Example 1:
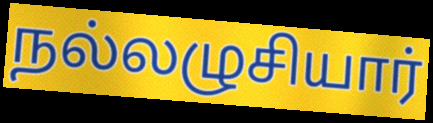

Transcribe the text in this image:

நல்லழுசியார்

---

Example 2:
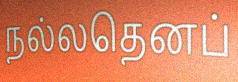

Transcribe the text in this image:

நல்லதெனப்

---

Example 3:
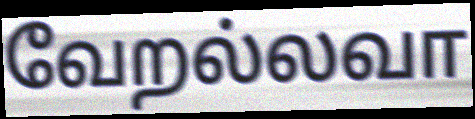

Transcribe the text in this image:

வேறல்லவா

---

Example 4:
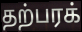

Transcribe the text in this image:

தற்பரக்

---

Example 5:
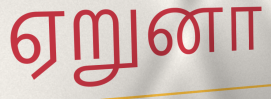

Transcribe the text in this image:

ஏறுனா